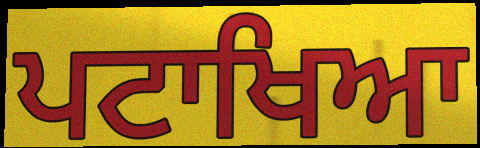
ਪਟਾਖਿਆ